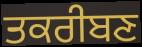
ਤਕਰੀਬਣ